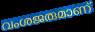
വംശജരുമാണ്